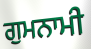
ਗੁਮਨਾਮੀ